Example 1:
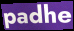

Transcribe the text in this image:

padhe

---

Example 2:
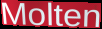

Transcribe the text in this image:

Molten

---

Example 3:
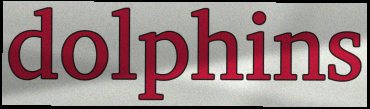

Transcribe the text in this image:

dolphins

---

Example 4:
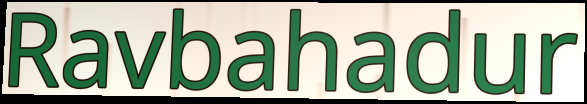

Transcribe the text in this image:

Ravbahadur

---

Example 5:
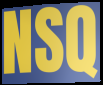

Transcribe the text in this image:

NSQ